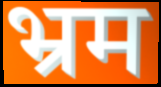
भ्रम